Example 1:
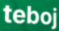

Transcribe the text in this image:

teboj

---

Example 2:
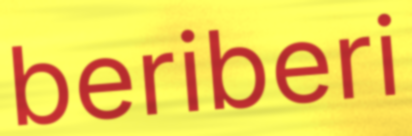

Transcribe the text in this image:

beriberi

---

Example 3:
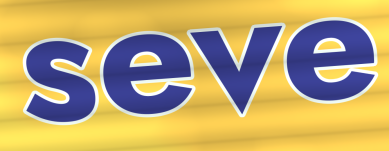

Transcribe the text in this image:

seve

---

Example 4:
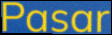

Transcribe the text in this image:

Pasar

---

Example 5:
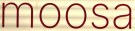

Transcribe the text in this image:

moosa